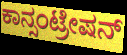
ಕಾನ್ಸಂಟ್ರೇಷನ್